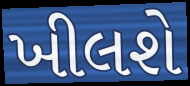
ખીલશે